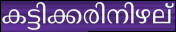
കട്ടിക്കരിനിഴല്